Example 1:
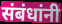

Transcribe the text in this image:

संबंधांनी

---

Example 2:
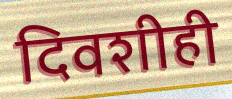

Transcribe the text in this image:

दिवशीही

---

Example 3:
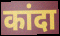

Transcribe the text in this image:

कांदा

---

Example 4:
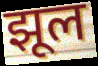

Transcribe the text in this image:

झूल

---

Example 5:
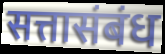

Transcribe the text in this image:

सत्तासंबंध